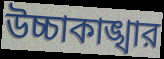
উচ্চাকাঙ্খার